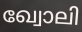
ഖ്വോലി